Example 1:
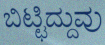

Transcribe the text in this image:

ಬಿಟ್ಟಿದ್ದುವು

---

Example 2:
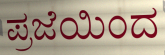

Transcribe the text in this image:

ಪ್ರಜೆಯಿಂದ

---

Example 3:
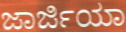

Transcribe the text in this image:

ಜಾರ್ಜಿಯಾ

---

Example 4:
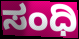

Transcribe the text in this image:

ಸಂಧಿ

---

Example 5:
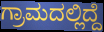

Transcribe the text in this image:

ಗ್ರಾಮದಲ್ಲಿದ್ದೆ